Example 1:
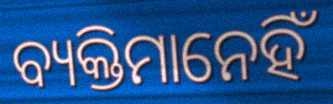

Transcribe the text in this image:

ବ୍ୟକ୍ତିମାନେହିଁ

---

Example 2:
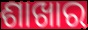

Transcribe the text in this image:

ଶାଖାର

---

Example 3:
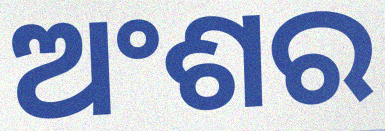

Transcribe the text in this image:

ଅଂଶର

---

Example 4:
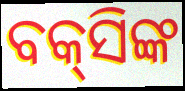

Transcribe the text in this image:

ବକ୍‌ସିଙ୍କ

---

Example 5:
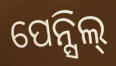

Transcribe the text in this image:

ପେନ୍ସିଲ୍